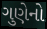
ગુણેનો